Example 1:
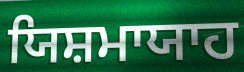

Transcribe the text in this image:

ਯਿਸ਼ਮਾਯਾਹ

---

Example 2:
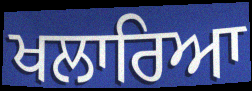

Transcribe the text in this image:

ਖਲਾਰਿਆ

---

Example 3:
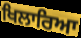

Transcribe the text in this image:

ਖਿਲਾਰਿਆ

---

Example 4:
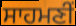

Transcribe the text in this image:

ਸਾਹਮਣੀਂ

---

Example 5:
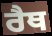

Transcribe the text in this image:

ਰੈਥ